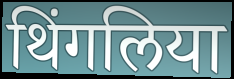
थिंगलिया